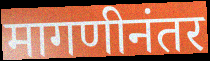
मागणीनंतर